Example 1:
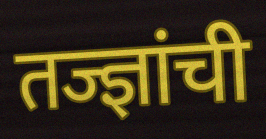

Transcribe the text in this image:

तज्ज्ञांची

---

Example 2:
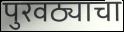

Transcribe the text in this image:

पुरवठ्याचा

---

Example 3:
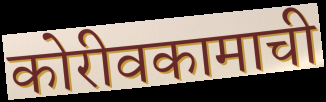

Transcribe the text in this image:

कोरीवकामाची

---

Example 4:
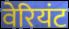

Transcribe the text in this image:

वेरियंट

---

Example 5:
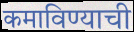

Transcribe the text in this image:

कमाविण्याची